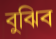
বুঝিব